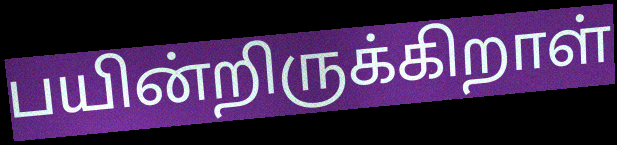
பயின்றிருக்கிறாள்